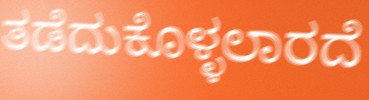
ತಡೆದುಕೊಳ್ಳಲಾರದೆ